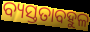
ବ୍ୟସ୍ତତାବହୁଳ